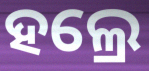
ହଲ୍ରେ